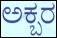
ಅಕ್ಬರ